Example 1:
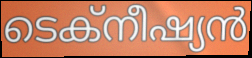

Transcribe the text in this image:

ടെക്നീഷ്യൻ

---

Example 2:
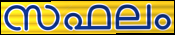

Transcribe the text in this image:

സഫലം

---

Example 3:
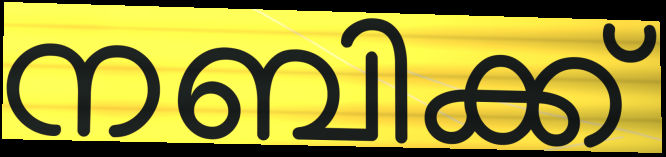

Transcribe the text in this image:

നബിക്ക്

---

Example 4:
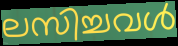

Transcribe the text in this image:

ലസിച്ചവൾ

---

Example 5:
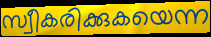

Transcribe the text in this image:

സ്വീകരിക്കുകയെന്ന